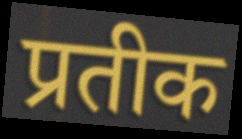
प्रतीक